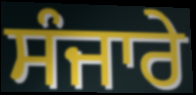
ਸੰਜਾਰੇ